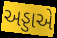
અડ્ડાએ